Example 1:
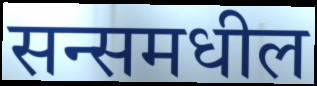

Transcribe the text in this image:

सन्समधील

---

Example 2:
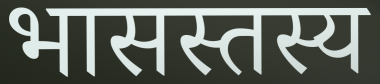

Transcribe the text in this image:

भासस्तस्य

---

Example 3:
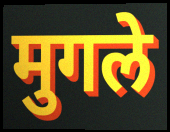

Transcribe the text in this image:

मुगले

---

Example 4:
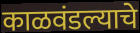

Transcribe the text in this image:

काळवंडल्याचे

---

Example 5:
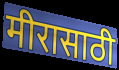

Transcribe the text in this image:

मीरासाठी